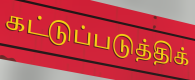
கட்டுப்படுத்திக்